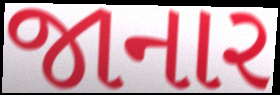
જાનાર